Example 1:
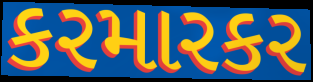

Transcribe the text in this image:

કરમારકર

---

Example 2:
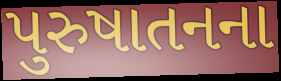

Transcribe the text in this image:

પુરુષાતનના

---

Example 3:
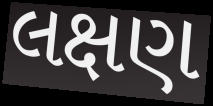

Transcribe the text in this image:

લક્ષણ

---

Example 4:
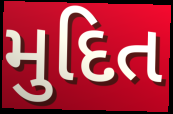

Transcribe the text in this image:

મુદિત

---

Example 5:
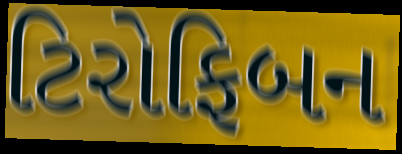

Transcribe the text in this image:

ટિરોફિબન